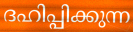
ദഹിപ്പിക്കുന്ന